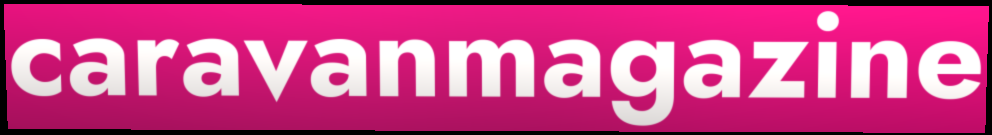
caravanmagazine